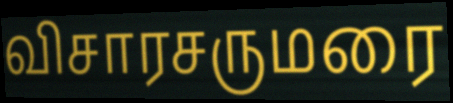
விசாரசருமரை